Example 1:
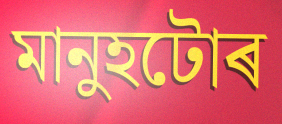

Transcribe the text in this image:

মানুহটোৰ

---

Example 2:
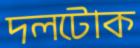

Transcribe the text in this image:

দলটোক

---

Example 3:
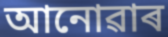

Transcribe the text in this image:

আনোৱাৰ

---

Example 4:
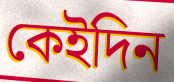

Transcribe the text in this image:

কেইদিন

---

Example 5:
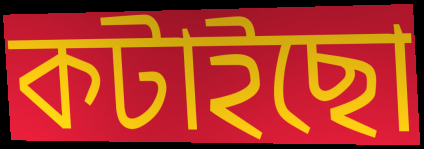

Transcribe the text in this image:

কটাইছো